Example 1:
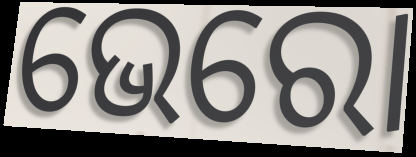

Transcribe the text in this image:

ଭେରୋ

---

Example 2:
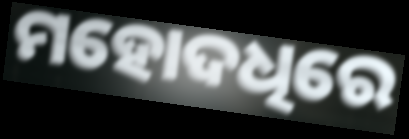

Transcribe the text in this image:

ମହୋଦଧିରେ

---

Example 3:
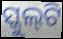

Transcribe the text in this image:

ସ୍କୁଲ୍‌ଟି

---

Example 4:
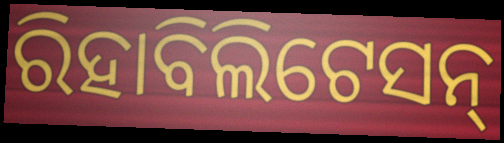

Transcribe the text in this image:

ରିହାବିଲିଟେସନ୍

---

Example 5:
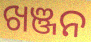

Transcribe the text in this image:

ଖଞ୍ଜନ